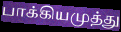
பாக்கியமுத்து